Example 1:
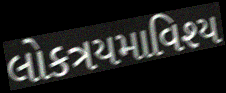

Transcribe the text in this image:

લોકત્રયમાવિશ્ય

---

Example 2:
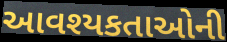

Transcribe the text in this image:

આવશ્યકતાઓની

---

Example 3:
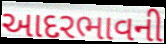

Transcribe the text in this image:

આદરભાવની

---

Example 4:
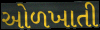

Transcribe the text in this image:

ઓળખાતી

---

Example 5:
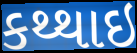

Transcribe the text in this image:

કથ્થાઇ